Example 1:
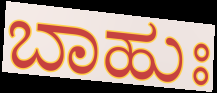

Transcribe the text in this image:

ಬಾಹುಃ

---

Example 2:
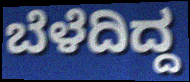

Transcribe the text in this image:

ಬೆಳೆದಿದ್ದ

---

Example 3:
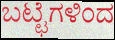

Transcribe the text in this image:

ಬಟ್ಟೆಗಳಿಂದ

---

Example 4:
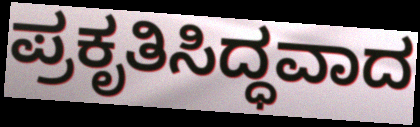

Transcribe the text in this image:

ಪ್ರಕೃತಿಸಿದ್ಧವಾದ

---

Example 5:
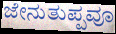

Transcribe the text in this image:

ಜೇನುತುಪ್ಪವೂ